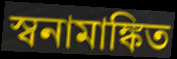
স্বনামাঙ্কিত